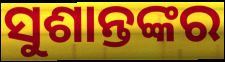
ସୁଶାନ୍ତଙ୍କର